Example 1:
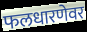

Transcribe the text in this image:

फलधारणेवर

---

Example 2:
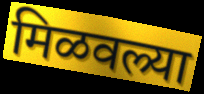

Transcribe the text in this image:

मिळवल्या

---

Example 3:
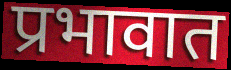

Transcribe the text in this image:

प्रभावात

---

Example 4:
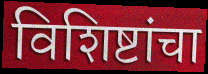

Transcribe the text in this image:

विशिष्टांचा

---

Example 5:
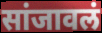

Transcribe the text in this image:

सांजावलं